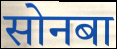
सोनबा